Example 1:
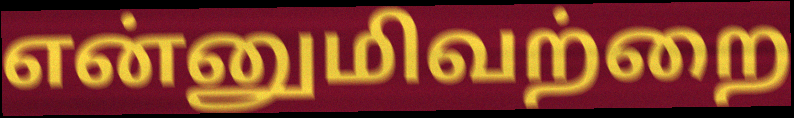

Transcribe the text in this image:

என்னுமிவற்றை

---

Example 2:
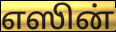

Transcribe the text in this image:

எஸின்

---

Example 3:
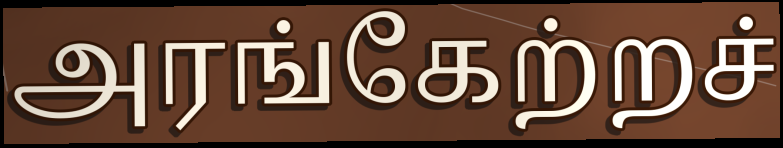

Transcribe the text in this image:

அரங்கேற்றச்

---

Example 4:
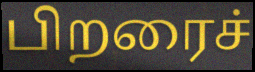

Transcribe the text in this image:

பிறரைச்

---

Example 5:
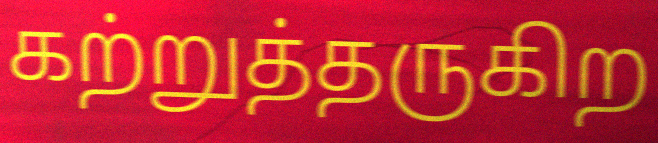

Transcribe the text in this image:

கற்றுத்தருகிற